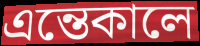
এন্তেকালে